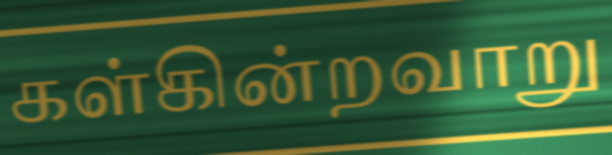
கள்கின்றவாறு